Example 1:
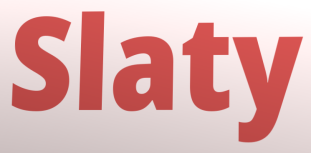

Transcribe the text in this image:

Slaty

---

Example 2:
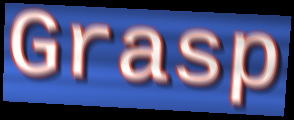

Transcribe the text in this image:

Grasp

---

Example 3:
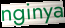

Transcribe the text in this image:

nginya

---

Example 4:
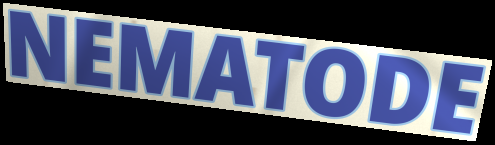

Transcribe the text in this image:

NEMATODE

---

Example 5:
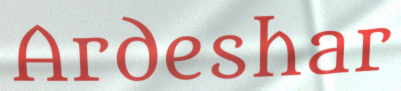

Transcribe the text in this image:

Ardeshar